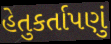
હેતુકર્તાપણું